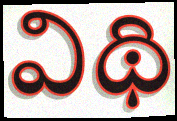
విథి